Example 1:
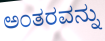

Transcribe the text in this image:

ಅಂತರವನ್ನು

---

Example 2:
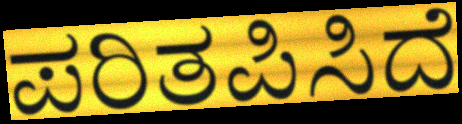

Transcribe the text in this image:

ಪರಿತಪಿಸಿದೆ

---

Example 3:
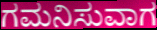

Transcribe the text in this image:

ಗಮನಿಸುವಾಗ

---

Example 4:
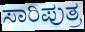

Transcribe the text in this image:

ಸಾರಿಪುತ್ರ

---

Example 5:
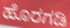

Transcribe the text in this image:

ಹೊರಗಡಿ